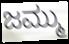
ಜಮ್ಮು